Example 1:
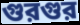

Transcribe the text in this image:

গুরগুর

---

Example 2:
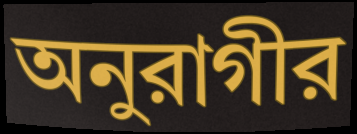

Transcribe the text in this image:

অনুরাগীর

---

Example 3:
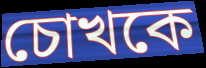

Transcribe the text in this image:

চোখকে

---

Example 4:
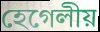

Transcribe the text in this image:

হেগেলীয়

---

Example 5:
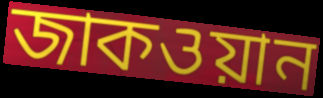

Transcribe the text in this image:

জাকওয়ান